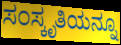
ಸಂಸ್ಕೃತಿಯನ್ನೂ